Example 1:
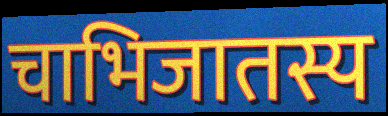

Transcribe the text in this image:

चाभिजातस्य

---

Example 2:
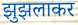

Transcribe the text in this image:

झुझलाकर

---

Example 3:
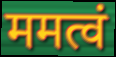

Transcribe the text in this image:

ममत्वं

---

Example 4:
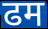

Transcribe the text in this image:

ढम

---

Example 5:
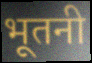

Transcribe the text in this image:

भूतनी